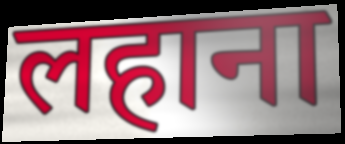
लहाना